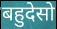
बहुदेसो